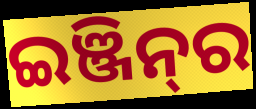
ଇଞ୍ଜିନ୍‍ର